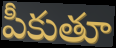
పీకుతూ